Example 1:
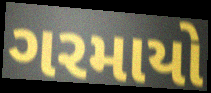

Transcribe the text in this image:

ગરમાયો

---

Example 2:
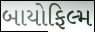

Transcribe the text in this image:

બાયોફિલ્મ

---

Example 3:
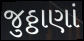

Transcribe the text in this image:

જુઠ્ઠાણાં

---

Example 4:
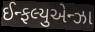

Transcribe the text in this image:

ઈન્ફલ્યુએન્ઝા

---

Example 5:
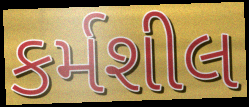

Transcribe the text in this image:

કર્મશીલ